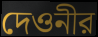
দেওনীর